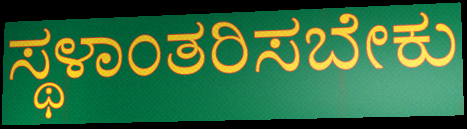
ಸ್ಥಳಾಂತರಿಸಬೇಕು